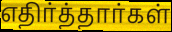
எதிர்த்தார்கள்